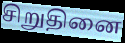
சிறுதினை